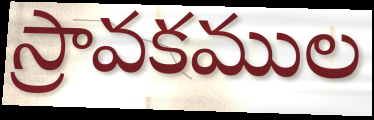
స్రావకముల